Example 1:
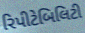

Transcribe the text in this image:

રિપીટેબિલિટી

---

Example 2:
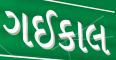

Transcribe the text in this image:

ગઈકાલ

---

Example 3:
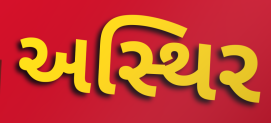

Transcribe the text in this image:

અસ્થિર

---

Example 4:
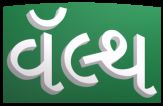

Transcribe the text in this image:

વૅલ્થ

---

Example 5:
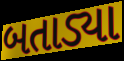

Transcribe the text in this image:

બતાડ્યા